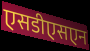
एसडीएसएन